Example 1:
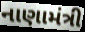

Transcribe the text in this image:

નાણામંત્રી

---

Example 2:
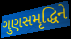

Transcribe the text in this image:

ગુણસમૃદ્ધિને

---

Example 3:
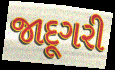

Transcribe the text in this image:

જાદૂગરી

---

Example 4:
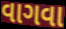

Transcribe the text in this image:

વાગવા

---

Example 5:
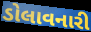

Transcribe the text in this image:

ડોલાવનારી